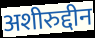
अशीरुद्दीन